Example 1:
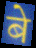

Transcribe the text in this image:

बे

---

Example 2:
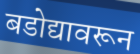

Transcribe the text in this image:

बडोद्यावरून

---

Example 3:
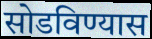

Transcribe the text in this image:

सोडविण्यास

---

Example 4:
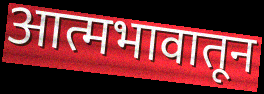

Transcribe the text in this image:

आत्मभावातून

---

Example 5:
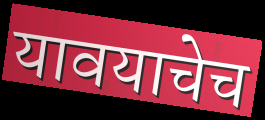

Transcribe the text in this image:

यावयाचेच